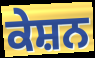
ਕੇਸ਼ਨ